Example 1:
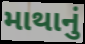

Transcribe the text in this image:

માથાનું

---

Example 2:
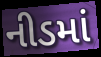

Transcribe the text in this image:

નીડમાં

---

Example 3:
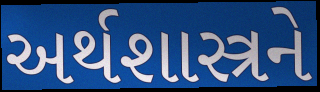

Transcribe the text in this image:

અર્થશાસ્ત્રને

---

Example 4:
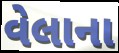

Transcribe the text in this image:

વેલાના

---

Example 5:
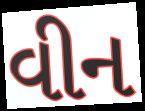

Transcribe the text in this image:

વીન